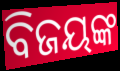
ବିଜୟଙ୍କ